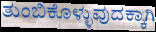
ತುಂಬಿಕೊಳ್ಳುವುದಕ್ಕಾಗಿ